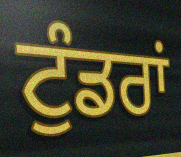
ਟੁੰਡਰਾਂ